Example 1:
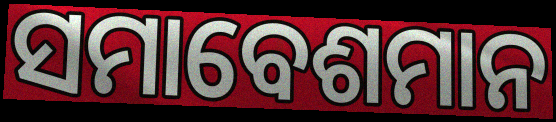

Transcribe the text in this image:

ସମାବେଶମାନ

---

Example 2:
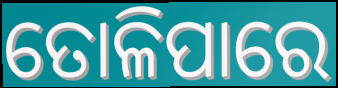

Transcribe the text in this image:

ତୋଳିପାରେ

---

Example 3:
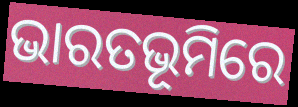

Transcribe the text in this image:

ଭାରତଭୂମିରେ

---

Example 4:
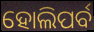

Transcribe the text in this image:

ହୋଲିପର୍ବ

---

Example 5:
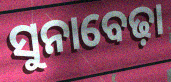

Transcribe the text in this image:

ସୁନାବେଢ଼ା